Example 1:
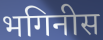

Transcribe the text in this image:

भगिनीस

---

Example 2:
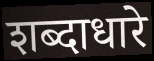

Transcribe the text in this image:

शब्दाधारे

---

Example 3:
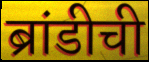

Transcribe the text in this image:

ब्रांडीची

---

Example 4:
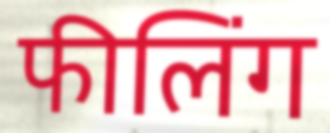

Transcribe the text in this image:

फीलिंग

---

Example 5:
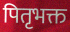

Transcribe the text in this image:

पितृभक्त